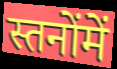
स्तनोंमें